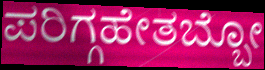
ಪರಿಗ್ಗಹೇತಬ್ಬೋ